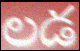
లడ